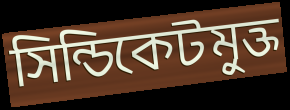
সিন্ডিকেটমুক্ত